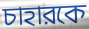
চাহারকে